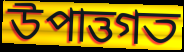
উপাত্তগত